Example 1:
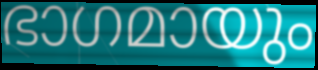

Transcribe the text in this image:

ഭാഗമായും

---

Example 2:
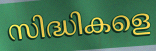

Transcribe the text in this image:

സിദ്ധികളെ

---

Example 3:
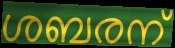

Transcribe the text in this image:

ശബരന്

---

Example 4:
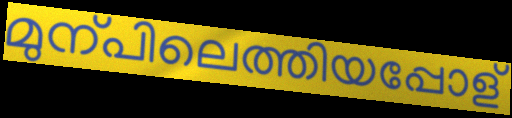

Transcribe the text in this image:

മുന്പിലെത്തിയപ്പോള്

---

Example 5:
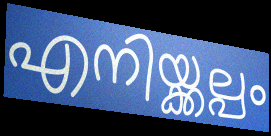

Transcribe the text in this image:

എനിയ്ക്കല്പം